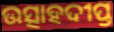
ଉତ୍ସାହଦୀପ୍ତ